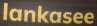
lankasee